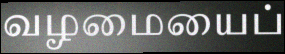
வழமையைப்